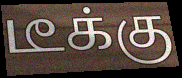
டீக்கு